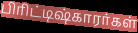
பிரிட்டிஷ்காரர்கள்